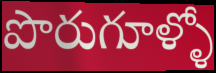
పొరుగూళ్ళో